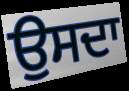
ਉਸਦਾ